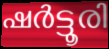
ഷർട്ടൂരി